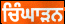
ਚਿੰਘਾੜਨ